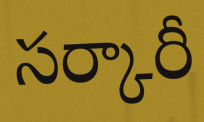
సర్కారీ